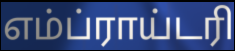
எம்ப்ராய்டரி